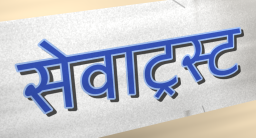
सेवाट्रस्ट